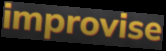
improvise